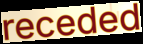
receded